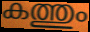
കത്തും